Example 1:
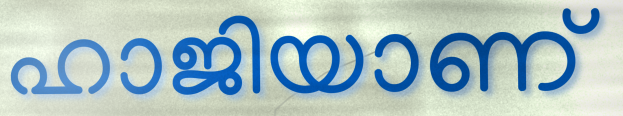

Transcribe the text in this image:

ഹാജിയാണ്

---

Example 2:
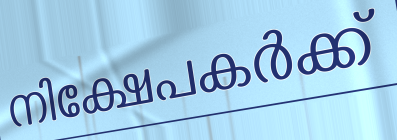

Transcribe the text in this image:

നിക്ഷേപകർക്ക്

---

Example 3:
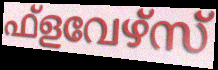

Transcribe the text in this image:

ഫ്ളവേഴ്സ്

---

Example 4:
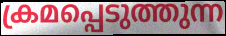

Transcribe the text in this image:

ക്രമപ്പെടുത്തുന്ന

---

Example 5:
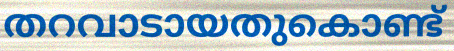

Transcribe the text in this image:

തറവാടായതുകൊണ്ട്